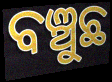
ବଞ୍ଚୁଛ